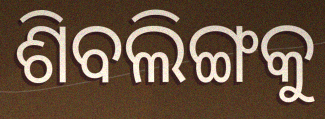
ଶିବଲିଙ୍ଗକୁ